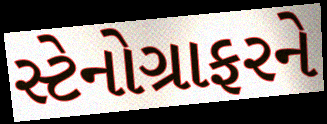
સ્ટેનોગ્રાફરને